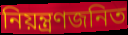
নিয়ন্ত্রণজনিত